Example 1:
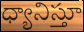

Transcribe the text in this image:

ధ్యానిస్తూ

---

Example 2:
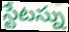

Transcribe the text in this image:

స్టేటస్ను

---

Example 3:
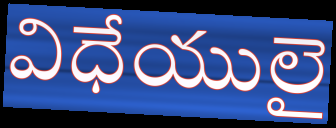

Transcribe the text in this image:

విధేయులై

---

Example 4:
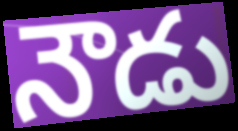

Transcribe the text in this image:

నౌడు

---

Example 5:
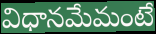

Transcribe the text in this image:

విధానమేమంటే